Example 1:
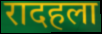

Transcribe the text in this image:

रादहला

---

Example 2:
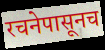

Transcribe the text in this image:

रचनेपासूनच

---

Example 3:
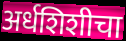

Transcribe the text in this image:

अर्धशिशीचा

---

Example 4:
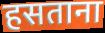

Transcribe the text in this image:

हसताना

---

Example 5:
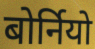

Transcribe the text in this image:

बोर्नियो